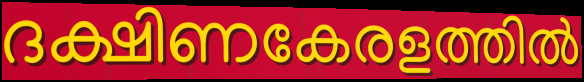
ദക്ഷിണകേരളത്തിൽ